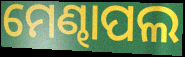
ମେଣ୍ଢାପଲ